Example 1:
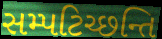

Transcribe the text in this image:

સમ્પટિચ્છન્તિ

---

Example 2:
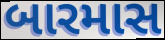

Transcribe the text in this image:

બારમાસ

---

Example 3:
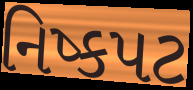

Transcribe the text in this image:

નિષ્કપટ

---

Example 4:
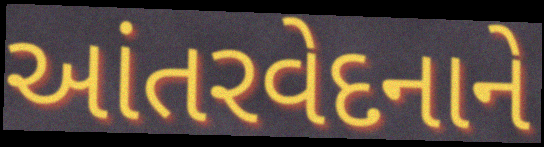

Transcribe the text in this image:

આંતરવેદનાને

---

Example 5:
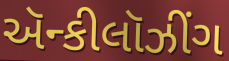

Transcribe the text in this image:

ઍન્કીલૉઝીંગ